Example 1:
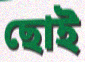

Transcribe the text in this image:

ছোই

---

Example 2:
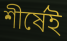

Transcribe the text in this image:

শীর্ষেই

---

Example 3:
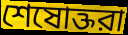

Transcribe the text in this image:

শেষোক্তরা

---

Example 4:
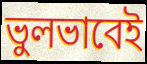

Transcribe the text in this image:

ভুলভাবেই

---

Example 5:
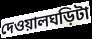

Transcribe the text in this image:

দেওয়ালঘড়িটা